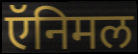
ऍनिमल